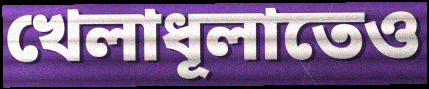
খেলাধূলাতেও